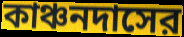
কাঞ্চনদাসের